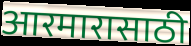
आरमारासाठी